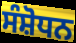
ਸੰਸ਼ੋਧਨ